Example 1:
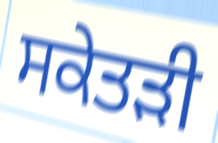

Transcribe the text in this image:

ਸਕੇਤੜੀ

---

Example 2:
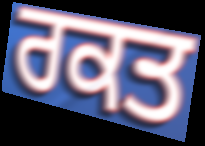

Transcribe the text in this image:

ਰਕਤ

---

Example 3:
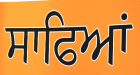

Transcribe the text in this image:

ਸਾਫਿਆਂ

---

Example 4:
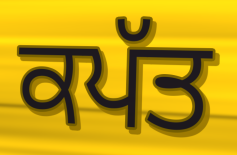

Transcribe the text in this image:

ਕਪੱਤ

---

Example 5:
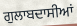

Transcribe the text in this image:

ਗੁਲਾਬਦਾਸੀਆਂ